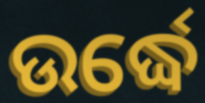
ଉର୍ଦ୍ଧେ